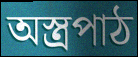
অস্ত্রপাঠ